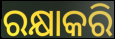
ରକ୍ଷାକରି